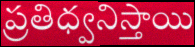
ప్రతిధ్వనిస్తాయి